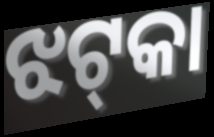
ଝଟ୍‍କା